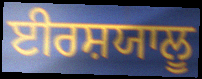
ਈਰਸ਼ਯਾਲੂ